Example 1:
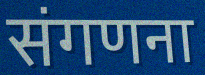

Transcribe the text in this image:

संगणना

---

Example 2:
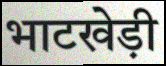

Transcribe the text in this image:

भाटखेड़ी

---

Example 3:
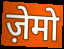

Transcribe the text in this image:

ज़ेमो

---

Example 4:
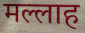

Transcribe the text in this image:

मल्लाह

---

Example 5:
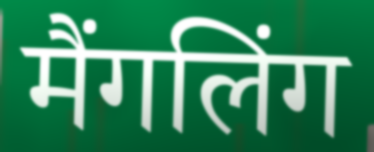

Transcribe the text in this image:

मैंगलिंग